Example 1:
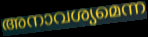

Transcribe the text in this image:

അനാവശ്യമെന്ന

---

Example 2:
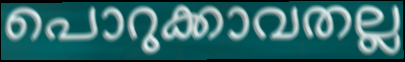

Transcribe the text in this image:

പൊറുക്കാവതല്ല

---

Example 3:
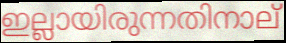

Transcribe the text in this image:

ഇല്ലായിരുന്നതിനാല്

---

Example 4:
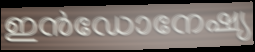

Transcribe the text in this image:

ഇൻഡോനേഷ്യ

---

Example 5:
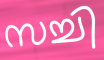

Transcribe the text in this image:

സച്ചി